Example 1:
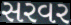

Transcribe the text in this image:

સરવર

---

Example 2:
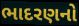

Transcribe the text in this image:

ભાદરણનો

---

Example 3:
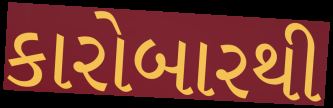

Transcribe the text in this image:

કારોબારથી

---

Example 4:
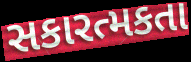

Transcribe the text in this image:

સકારત્મકતા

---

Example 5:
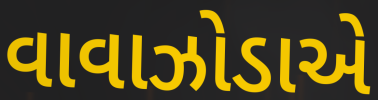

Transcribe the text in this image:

વાવાઝોડાએ